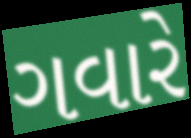
ગવારે